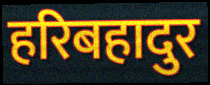
हरिबहादुर